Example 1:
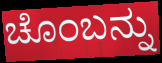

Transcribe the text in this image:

ಚೊಂಬನ್ನು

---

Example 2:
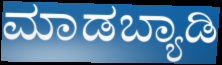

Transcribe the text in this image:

ಮಾಡಬ್ಯಾಡಿ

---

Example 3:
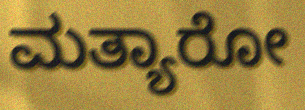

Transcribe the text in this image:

ಮತ್ಯಾರೋ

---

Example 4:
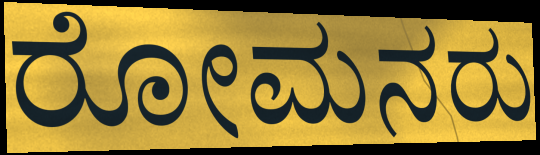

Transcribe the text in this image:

ರೋಮನರು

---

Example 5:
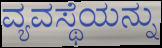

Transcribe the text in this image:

ವ್ಯವಸ್ಥೆಯನ್ನು